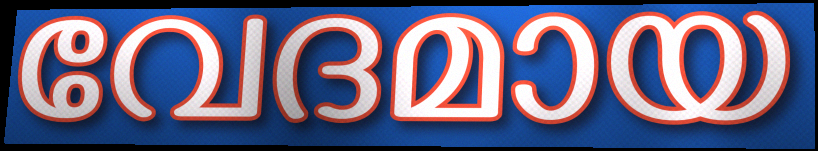
വേദമായ